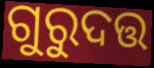
ଗୁରୁଦତ୍ତ